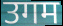
उगम